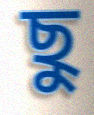
ছু